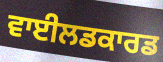
ਵਾਈਲਡਕਾਰਡ